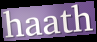
haath